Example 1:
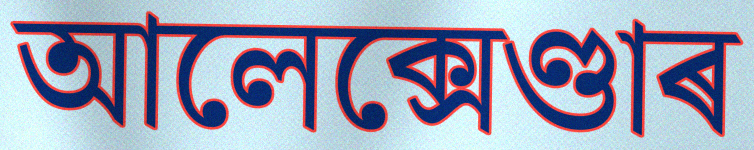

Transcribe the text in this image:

আলেক্সেণ্ডাৰ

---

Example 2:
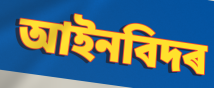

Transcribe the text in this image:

আইনবিদৰ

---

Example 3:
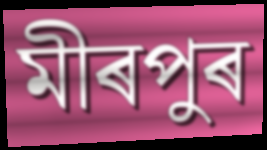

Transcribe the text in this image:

মীৰপুৰ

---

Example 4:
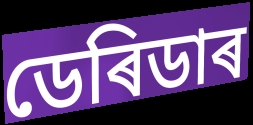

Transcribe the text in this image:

ডেৰিডাৰ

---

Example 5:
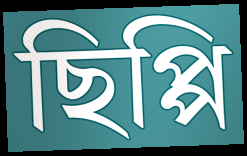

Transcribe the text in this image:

ছিপ্পি